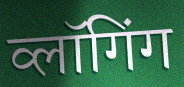
व्लॉगिंग